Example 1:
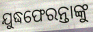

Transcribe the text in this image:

ଯୁଦ୍ଧଫେରନ୍ତାଙ୍କୁ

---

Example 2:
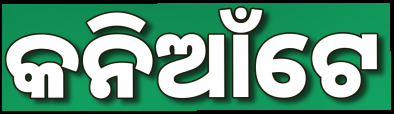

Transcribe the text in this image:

କନିଆଁଟେ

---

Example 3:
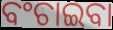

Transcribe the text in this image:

ବଂଚାଇବା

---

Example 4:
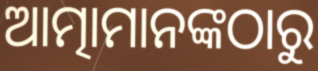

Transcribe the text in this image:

ଆତ୍ମାମାନଙ୍କଠାରୁ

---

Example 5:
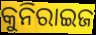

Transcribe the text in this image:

କୁନିରାଇଜ